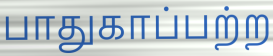
பாதுகாப்பற்ற